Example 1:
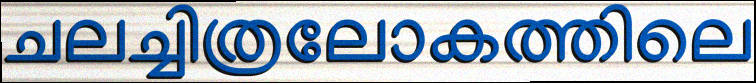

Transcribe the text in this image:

ചലച്ചിത്രലോകത്തിലെ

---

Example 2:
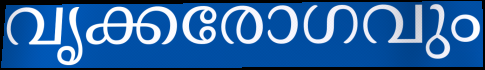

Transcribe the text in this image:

വൃക്കരോഗവും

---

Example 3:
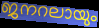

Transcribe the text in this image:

ജനറലായും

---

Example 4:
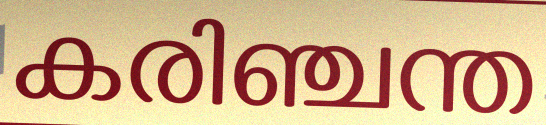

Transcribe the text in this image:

കരിഞ്ചന്ത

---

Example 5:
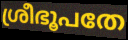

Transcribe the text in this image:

ശ്രീഭൂപതേ